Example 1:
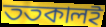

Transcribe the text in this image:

ততকালই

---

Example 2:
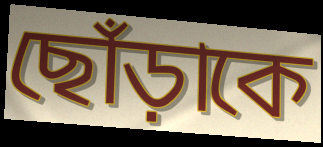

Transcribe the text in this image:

ছোঁড়াকে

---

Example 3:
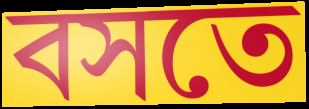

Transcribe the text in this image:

বসতে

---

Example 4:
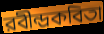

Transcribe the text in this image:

রবীন্দ্রকবিতা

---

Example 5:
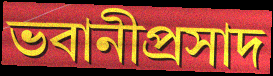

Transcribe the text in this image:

ভবানীপ্রসাদ